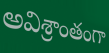
అవిశ్రాంతంగా